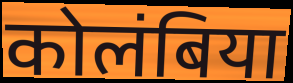
कोलंबिया